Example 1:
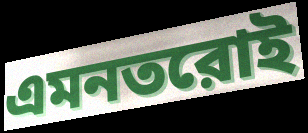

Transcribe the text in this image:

এমনতরোই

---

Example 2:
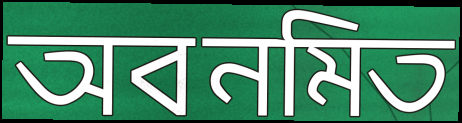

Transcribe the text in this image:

অবনমিত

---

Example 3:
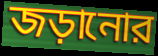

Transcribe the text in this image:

জড়ানোর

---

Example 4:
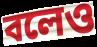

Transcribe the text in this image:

বলেও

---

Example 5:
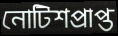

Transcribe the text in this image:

নোটিশপ্রাপ্ত